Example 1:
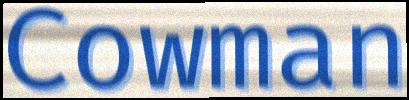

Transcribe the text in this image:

Cowman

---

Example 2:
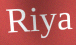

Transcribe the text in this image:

Riya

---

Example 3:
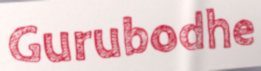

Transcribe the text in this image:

Gurubodhe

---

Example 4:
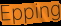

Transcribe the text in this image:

Epping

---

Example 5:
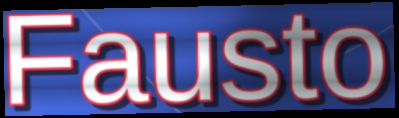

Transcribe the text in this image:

Fausto